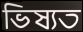
ভিষ্যত